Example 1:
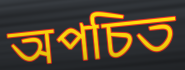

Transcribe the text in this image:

অপচিত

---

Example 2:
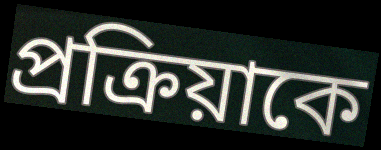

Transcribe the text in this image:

প্রক্রিয়াকে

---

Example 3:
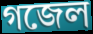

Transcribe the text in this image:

গজেল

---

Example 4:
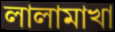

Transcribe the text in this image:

লালামাখা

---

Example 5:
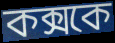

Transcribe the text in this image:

কক্সকে